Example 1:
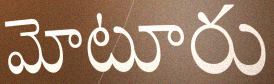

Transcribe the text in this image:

మోటూరు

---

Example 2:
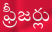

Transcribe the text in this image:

ఫ్రీజర్లు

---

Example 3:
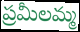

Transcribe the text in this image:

ప్రమీలమ్మ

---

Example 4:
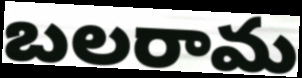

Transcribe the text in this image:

బలరామ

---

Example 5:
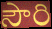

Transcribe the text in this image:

సౌరి